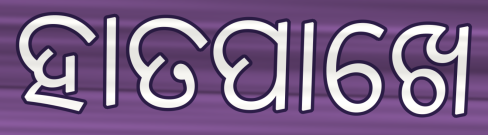
ହାତପାଖେ